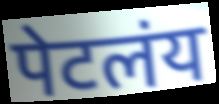
पेटलंय